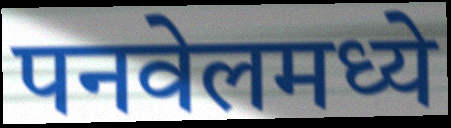
पनवेलमध्ये